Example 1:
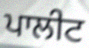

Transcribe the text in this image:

ਪਾਲੀਟ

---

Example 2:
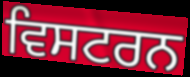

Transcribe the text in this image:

ਵਿਸਟਰਨ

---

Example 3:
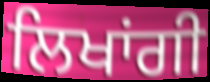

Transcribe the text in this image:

ਲਿਖਾਂਗੀ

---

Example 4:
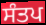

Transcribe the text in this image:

ਸੰਤਪ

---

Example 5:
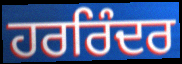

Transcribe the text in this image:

ਹਰਰਿੰਦਰ